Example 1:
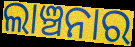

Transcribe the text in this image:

ଲାଞ୍ଚନାର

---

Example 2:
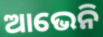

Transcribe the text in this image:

ଆଭେନି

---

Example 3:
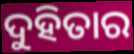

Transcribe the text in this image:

ଦୁହିତାର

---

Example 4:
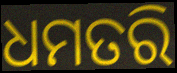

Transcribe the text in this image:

ଧମତରି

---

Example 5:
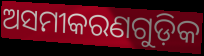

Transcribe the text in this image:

ଅସମୀକରଣଗୁଡ଼ିକ